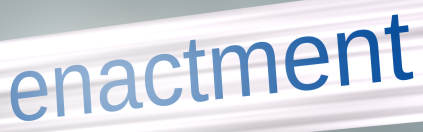
enactment